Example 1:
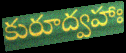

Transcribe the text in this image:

కురూద్వహాః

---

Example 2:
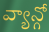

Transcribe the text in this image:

వ్యాన్గో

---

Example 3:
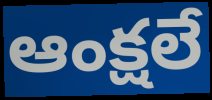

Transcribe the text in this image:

ఆంక్షలే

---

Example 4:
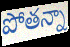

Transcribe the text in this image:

పోతన్నా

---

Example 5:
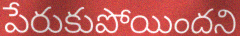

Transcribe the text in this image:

పేరుకుపోయిందని